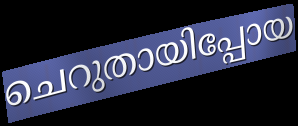
ചെറുതായിപ്പോയ